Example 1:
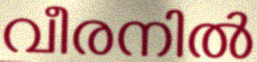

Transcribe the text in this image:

വീരനിൽ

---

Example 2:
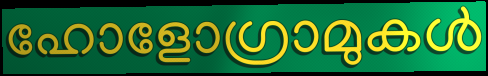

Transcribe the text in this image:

ഹോളോഗ്രാമുകൾ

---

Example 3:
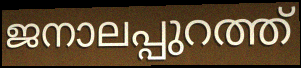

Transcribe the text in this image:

ജനാലപ്പുറത്ത്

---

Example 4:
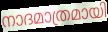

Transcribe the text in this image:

നാദമാത്രമായി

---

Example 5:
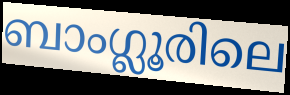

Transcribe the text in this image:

ബാംഗ്ലൂരിലെ